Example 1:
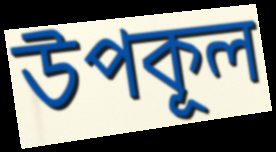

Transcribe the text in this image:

উপকূল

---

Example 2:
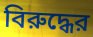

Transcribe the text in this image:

বিরুদ্ধের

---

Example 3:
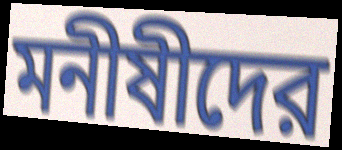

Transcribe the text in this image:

মনীষীদের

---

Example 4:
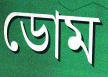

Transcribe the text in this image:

ডোম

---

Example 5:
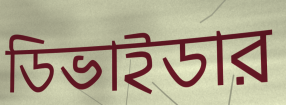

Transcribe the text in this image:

ডিভাইডার